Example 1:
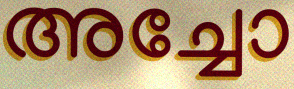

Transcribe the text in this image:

അച്ചോ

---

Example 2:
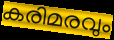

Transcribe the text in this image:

കരിമരവും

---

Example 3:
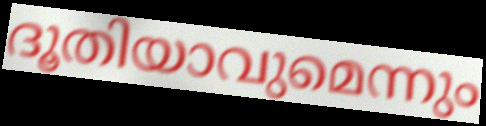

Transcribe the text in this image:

ദൂതിയാവുമെന്നും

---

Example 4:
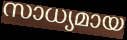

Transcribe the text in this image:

സാധ്യമായ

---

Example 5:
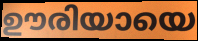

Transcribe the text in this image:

ഊരിയായെ